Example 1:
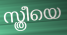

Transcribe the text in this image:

സ്ത്രീയെ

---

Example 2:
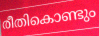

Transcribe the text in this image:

രീതികൊണ്ടും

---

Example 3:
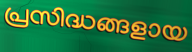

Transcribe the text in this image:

പ്രസിദ്ധങ്ങളായ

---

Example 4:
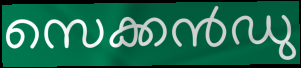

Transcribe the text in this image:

സെക്കൻഡു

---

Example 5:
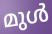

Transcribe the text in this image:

മുൾ